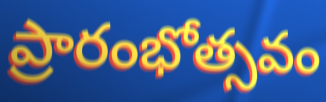
ప్రారంభోత్సవం